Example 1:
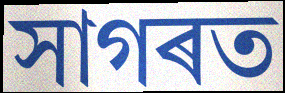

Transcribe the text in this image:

সাগৰত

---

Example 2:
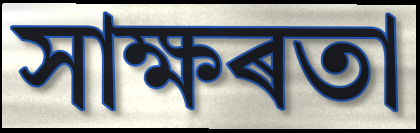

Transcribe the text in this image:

সাক্ষৰতা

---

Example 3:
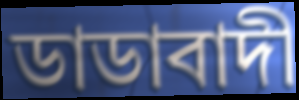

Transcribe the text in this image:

ডাডাবাদী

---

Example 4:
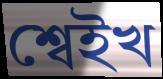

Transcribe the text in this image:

শ্বেইখ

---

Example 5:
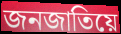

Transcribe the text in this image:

জনজাতিয়ে